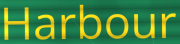
Harbour